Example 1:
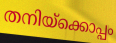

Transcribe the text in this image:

തനിയ്ക്കൊപ്പം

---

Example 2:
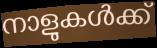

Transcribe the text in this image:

നാളുകൾക്ക്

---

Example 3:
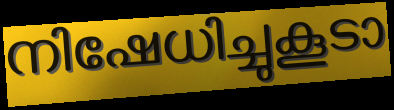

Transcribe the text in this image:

നിഷേധിച്ചുകൂടാ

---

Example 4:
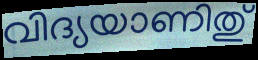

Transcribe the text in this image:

വിദ്യയാണിതു്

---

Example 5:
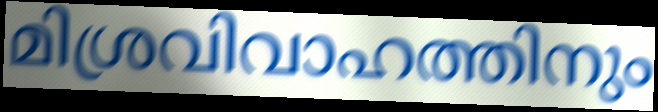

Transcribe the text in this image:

മിശ്രവിവാഹത്തിനും